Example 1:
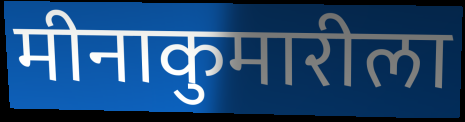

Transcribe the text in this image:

मीनाकुमारीला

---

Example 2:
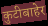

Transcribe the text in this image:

कुटीबाहेर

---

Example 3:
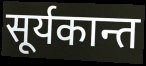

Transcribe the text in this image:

सूर्यकान्त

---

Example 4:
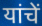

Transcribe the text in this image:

यांचें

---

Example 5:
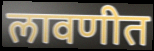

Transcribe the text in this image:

लावणीत